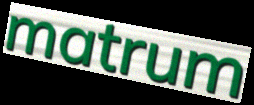
matrum